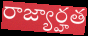
రాజ్యార్హత